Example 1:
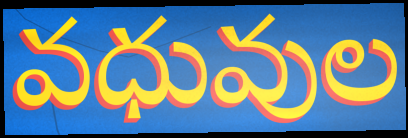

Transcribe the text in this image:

వధువుల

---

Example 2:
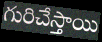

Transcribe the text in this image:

గురిచేస్తాయి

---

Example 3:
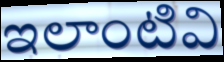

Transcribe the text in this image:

ఇలాంటివి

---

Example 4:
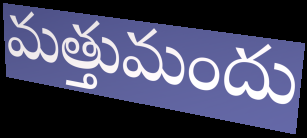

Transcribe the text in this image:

మత్తుమందు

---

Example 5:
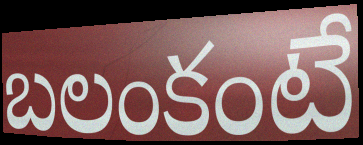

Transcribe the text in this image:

బలంకంటే